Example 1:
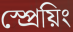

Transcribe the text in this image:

স্প্রেয়িং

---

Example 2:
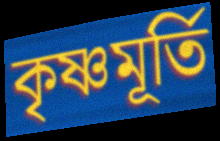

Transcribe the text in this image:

কৃষ্ণমূর্তি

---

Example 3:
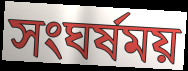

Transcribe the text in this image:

সংঘর্ষময়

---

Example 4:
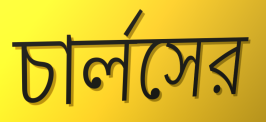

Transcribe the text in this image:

চার্লসের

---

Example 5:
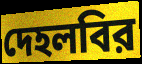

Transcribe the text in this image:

দেহলবির